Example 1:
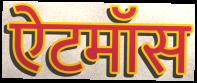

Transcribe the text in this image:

ऐटमॉस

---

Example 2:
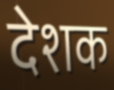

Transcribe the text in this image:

देशक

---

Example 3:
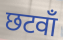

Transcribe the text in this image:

छटवाँ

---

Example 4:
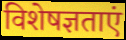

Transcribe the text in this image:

विशेषज्ञताएं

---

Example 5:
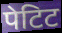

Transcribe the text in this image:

पेटिट